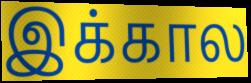
இக்கால